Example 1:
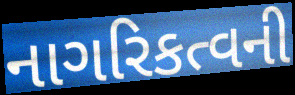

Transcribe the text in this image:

નાગરિકત્વની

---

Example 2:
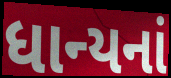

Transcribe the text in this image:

ધાન્યનાં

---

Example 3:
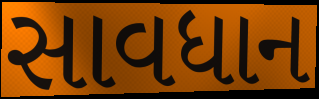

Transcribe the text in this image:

સાવધાન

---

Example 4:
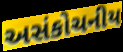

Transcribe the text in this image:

અસંકોચનીય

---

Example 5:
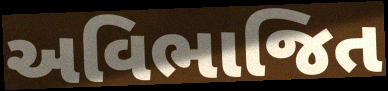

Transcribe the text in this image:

અવિભાજિત